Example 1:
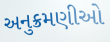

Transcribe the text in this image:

અનુક્રમણીઓ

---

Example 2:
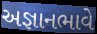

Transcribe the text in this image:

અજ્ઞાનભાવે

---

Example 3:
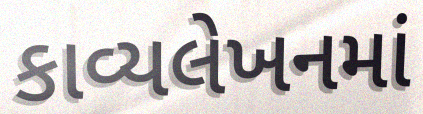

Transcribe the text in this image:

કાવ્યલેખનમાં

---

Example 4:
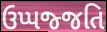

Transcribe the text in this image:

ઉપ્પજ્જતિ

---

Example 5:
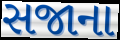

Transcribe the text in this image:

સજાના